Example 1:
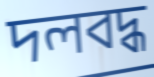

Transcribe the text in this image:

দলবদ্ধ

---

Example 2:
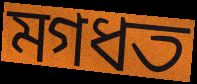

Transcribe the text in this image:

মগধত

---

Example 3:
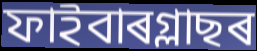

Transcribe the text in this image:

ফাইবাৰগ্লাছৰ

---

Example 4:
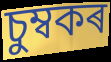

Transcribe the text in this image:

চুম্বকৰ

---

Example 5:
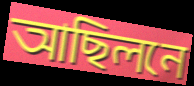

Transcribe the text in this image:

আছিলনে